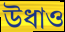
উধাও